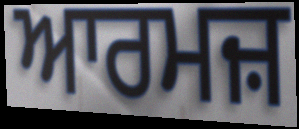
ਆਰਮਜ਼